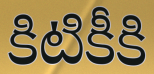
కిటికీకి